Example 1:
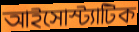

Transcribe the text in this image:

আইসোস্ট্যাটিক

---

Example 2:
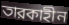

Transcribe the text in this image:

তারকাহীন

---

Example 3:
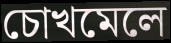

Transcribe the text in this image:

চোখমেলে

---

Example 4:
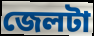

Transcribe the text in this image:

জেলটা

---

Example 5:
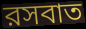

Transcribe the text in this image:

রসবাত